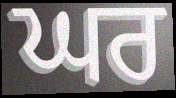
ਘਰ